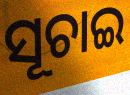
ସୂଚାଇ